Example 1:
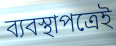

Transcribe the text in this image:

ব্যবস্থাপত্রেই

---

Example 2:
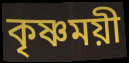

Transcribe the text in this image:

কৃষ্ণময়ী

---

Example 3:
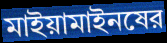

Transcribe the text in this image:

মাইয়ামাইনষের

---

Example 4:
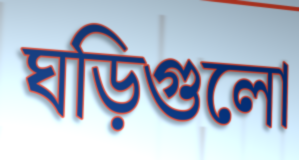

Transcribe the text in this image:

ঘড়িগুলো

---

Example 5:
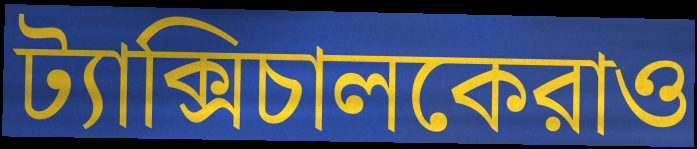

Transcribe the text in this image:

ট্যাক্সিচালকেরাও